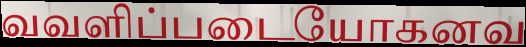
வவளிப்படையோகனவ